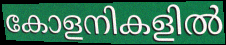
കോളനികളിൽ